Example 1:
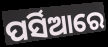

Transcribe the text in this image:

ପର୍ସିଆରେ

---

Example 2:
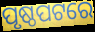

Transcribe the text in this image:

ପୃଷ୍ଠପଟରେ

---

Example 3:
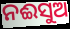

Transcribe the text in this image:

ନଈସୁଅ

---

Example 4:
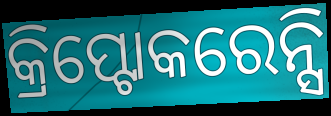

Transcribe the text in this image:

କ୍ରିପ୍ଟୋକରେନ୍ସି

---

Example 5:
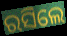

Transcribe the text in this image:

ରସିଲେ